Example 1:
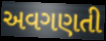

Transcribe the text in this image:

અવગણતી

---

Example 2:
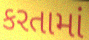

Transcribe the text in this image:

કરતામાં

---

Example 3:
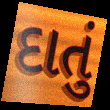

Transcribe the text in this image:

દાતું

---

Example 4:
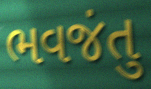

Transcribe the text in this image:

ભવજંતુ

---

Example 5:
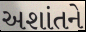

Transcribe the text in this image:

અશાંતને